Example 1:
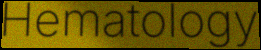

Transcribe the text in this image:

Hematology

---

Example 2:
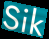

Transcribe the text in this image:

Sik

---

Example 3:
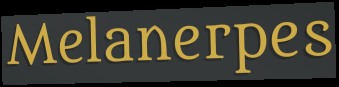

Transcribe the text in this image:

Melanerpes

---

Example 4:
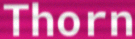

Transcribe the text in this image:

Thorn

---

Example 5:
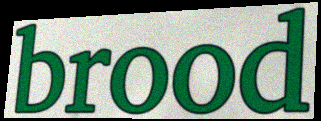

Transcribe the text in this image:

brood